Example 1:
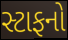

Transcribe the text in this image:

સ્ટાફનો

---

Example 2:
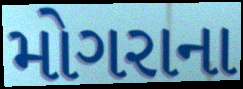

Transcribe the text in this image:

મોગરાના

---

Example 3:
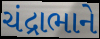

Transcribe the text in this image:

ચંદ્રાભાને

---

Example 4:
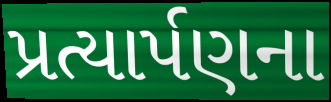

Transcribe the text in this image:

પ્રત્યાર્પણના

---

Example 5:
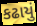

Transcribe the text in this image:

કઢાયું